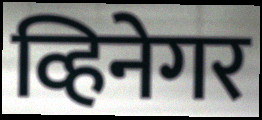
व्हिनेगर